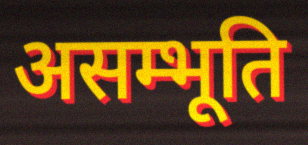
असम्भूति